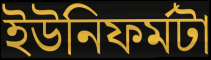
ইউনিফর্মটা